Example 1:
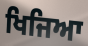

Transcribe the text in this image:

ਖਿਜਿਆ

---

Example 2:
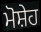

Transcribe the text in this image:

ਮੋਸ਼ੇਹ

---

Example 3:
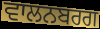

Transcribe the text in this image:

ਵਾਲਨਬਰਗ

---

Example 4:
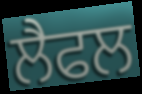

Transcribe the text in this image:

ਲੈਫਲ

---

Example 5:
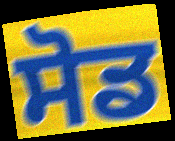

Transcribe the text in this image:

ਸੋਡ